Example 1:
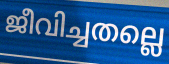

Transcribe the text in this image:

ജീവിച്ചതല്ലെ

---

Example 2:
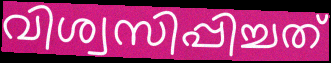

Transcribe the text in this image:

വിശ്വസിപ്പിച്ചത്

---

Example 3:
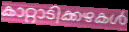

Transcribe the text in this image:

കാറ്റാടിക്കഴകൾ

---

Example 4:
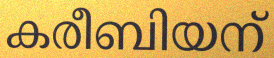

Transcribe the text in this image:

കരീബിയന്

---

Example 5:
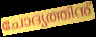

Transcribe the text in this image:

ചോദ്യത്തിനു്